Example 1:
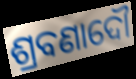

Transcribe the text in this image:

ଶ୍ରବଣାଦୌ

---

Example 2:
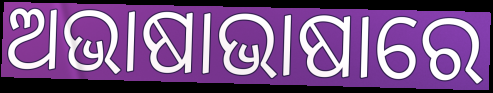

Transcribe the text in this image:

ଅଭାଷାଭାଷାରେ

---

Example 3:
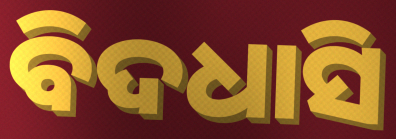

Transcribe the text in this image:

ବିଦଧାସି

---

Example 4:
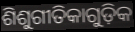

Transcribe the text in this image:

ଶିଶୁଗୀତିକାଗୁଡ଼ିକ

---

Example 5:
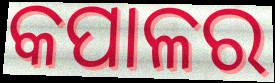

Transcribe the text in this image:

କପାଳର